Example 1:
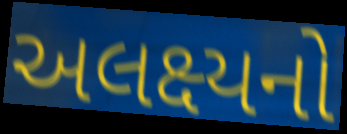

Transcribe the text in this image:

અલક્ષ્યનો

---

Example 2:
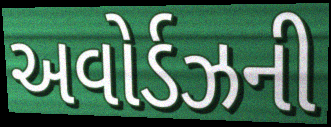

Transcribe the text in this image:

અવોર્ડઝની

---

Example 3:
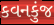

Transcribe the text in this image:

કવનકુંજ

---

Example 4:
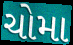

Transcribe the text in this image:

ચોમા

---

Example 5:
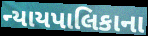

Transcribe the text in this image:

ન્યાયપાલિકાના